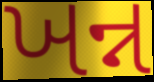
ખન્ન